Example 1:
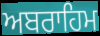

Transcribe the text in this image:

ਅਬਰਾਹਿਮ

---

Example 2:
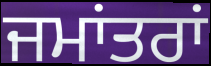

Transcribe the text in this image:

ਜਮਾਂਤਰਾਂ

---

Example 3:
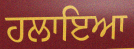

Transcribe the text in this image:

ਹਲਾਇਆ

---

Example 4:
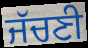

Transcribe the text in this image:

ਜੱਚਣੀ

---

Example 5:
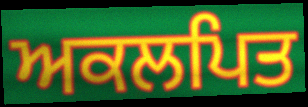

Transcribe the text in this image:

ਅਕਲਪਿਤ